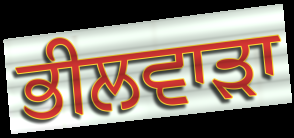
ਭੀਲਵਾੜਾ